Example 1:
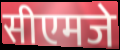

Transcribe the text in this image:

सीएमजे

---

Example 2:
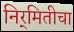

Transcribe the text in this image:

निर्मितीचा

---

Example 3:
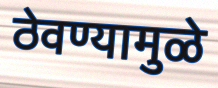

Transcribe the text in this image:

ठेवण्यामुळे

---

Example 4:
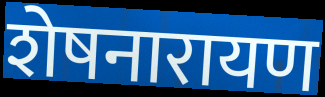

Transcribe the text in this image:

शेषनारायण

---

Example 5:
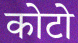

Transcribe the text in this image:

कोटो